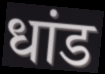
धांड